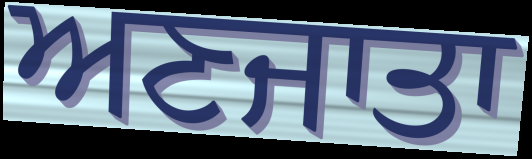
ਅਣਜਾਤਾ